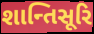
શાન્તિસૂરિ